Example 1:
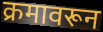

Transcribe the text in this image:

क्रमावरून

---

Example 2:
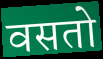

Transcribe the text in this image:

वसतो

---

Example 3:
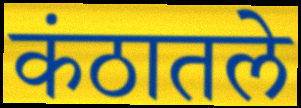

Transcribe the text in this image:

कंठातले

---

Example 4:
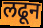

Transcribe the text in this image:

लढून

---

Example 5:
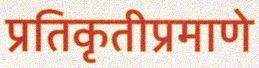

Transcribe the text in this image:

प्रतिकृतीप्रमाणे